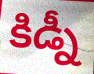
కిడ్నీ